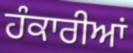
ਹੰਕਾਰੀਆਂ